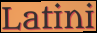
Latini